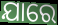
ଯାରେ